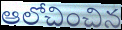
ఆలోచించిన